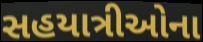
સહયાત્રીઓના